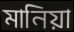
মানিয়া